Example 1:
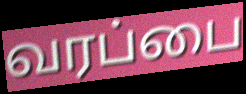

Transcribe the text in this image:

வரப்பை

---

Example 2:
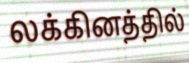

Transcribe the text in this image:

லக்கினத்தில்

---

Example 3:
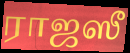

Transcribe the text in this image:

ராஜஸீ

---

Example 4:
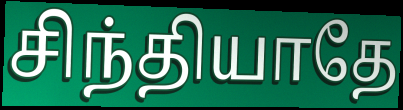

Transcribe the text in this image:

சிந்தியாதே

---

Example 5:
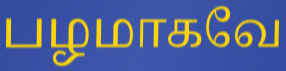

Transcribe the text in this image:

பழமாகவே